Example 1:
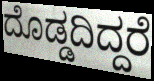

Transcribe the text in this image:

ದೊಡ್ಡದಿದ್ದರೆ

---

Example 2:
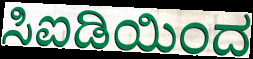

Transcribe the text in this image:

ಸಿಐಡಿಯಿಂದ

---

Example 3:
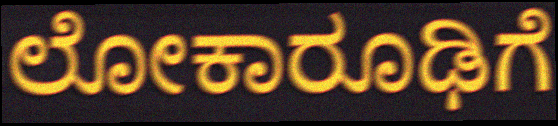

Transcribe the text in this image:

ಲೋಕಾರೂಢಿಗೆ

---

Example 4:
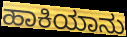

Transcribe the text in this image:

ಹಾಕಿಯಾನು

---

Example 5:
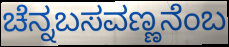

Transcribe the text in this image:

ಚೆನ್ನಬಸವಣ್ಣನೆಂಬ